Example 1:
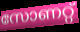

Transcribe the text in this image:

സോണറ്റ്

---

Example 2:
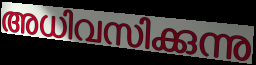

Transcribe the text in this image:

അധിവസിക്കുന്നു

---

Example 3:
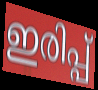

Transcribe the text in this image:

ഇരിപ്പ്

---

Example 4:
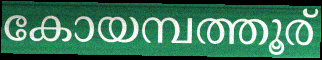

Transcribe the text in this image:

കോയമ്പത്തൂര്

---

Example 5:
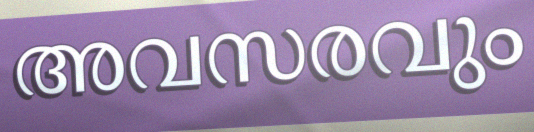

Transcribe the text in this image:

അവസരവും